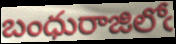
బంధురాజిలోఁ